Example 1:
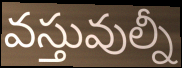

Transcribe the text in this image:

వస్తువుల్నీ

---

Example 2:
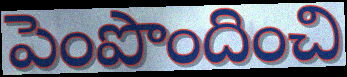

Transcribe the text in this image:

పెంపొందించి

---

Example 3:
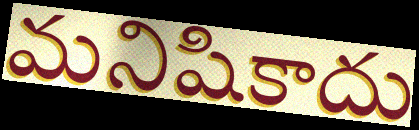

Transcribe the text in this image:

మనిషికాదు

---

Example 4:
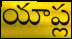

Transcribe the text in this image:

యాప్ల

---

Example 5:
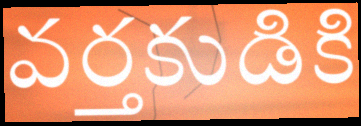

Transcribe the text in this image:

వర్తకుడికి